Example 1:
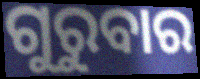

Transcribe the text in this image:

ଗୁରୁବାର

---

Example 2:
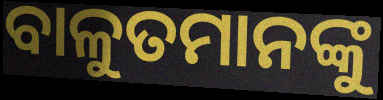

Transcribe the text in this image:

ବାଳୁତମାନଙ୍କୁ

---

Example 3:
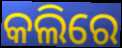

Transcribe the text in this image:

କଲିରେ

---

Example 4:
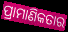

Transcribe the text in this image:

ପ୍ରାମାଣିକତାର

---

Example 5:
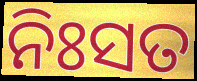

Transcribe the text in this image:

ନିଃସତ